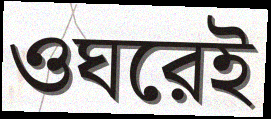
ওঘরেই